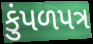
કુંપળપત્ર